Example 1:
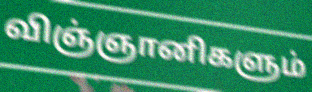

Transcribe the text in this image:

விஞ்ஞானிகளும்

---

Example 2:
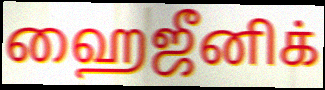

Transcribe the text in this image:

ஹைஜீனிக்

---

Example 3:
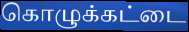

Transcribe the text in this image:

கொழுக்கட்டை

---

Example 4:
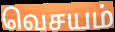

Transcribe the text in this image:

வெசயம்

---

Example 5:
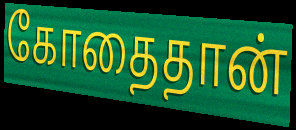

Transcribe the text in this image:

கோதைதான்